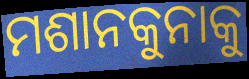
ମଶାନକୁନାକୁ